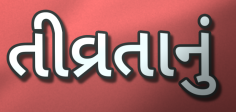
તીવ્રતાનું